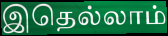
இதெல்லாம்